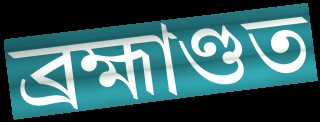
ব্ৰহ্মাণ্ডত